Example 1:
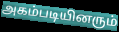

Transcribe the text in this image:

அகம்படியினரும்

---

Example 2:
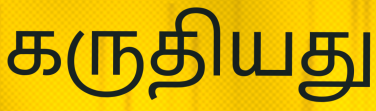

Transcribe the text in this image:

கருதியது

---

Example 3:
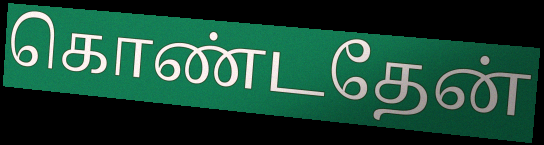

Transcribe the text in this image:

கொண்டதேன்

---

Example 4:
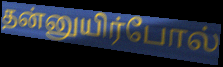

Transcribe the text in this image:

தன்னுயிர்போல்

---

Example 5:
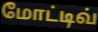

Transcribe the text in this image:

மோட்டிவ்